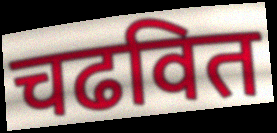
चढवित